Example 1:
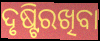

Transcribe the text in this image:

ଦୃଷ୍ଟିରଖିବା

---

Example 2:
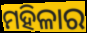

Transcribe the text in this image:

ମହିଳାର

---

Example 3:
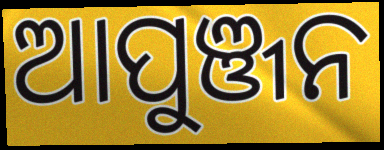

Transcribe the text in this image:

ଆପୁଞ୍ଜନ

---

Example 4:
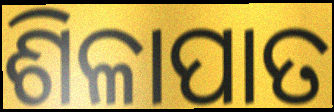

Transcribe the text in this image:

ଶିଳାପାତ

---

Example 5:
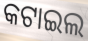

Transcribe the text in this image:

କଟାଇଲ